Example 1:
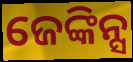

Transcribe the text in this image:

ଜେଙ୍କିନ୍ସ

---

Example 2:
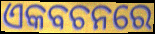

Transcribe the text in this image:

ଏକବଚନରେ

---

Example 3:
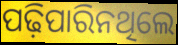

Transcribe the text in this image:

ପଢ଼ିପାରିନଥିଲେ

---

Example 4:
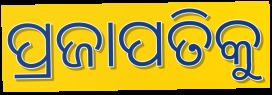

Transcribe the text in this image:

ପ୍ରଜାପତିକୁ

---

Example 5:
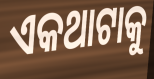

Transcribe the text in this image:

ଏକଥାଟାକୁ